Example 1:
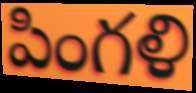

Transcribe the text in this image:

పింగళి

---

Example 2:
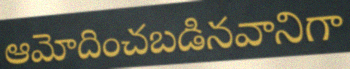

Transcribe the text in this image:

ఆమోదించబడినవానిగా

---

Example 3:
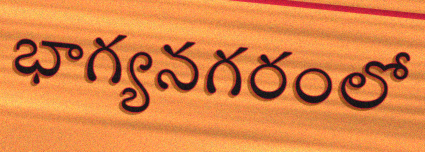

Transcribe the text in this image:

భాగ్యనగరంలో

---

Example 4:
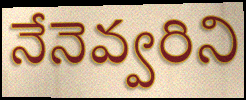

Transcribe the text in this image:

నేనెవ్వరిని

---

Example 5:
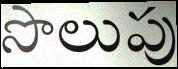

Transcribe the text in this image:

సొలుపు